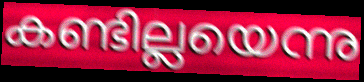
കണ്ടില്ലയെന്നു